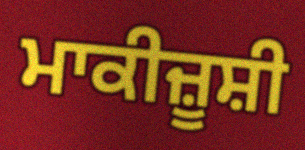
ਮਾਕੀਜ਼ੂਸ਼ੀ